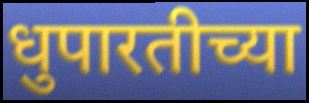
धुपारतीच्या